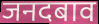
जनदबाव